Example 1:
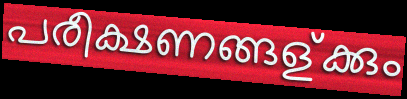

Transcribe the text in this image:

പരീക്ഷണങ്ങള്ക്കും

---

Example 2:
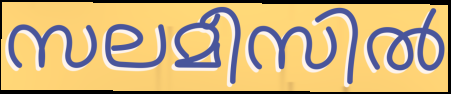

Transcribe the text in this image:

സലമീസിൽ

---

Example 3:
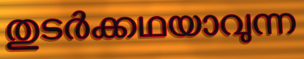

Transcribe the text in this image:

തുടർക്കഥയാവുന്ന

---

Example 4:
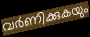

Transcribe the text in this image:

വർണിക്കുകയും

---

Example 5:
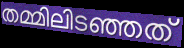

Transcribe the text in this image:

തമ്മിലിടഞ്ഞത്